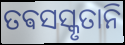
ତଵସସ୍କୃତାନି